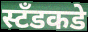
स्टॅंडकडे